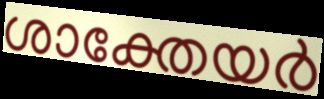
ശാക്തേയർ